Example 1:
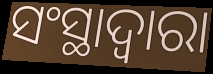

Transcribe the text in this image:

ସଂସ୍ଥାଦ୍ୱାରା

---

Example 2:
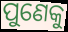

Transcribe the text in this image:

ପୁଣେକୁ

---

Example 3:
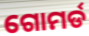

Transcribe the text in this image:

ଗୋମର୍ଡ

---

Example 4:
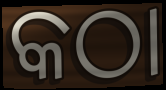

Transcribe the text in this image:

କଠା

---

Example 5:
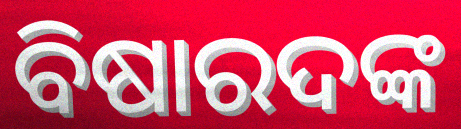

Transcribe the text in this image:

ବିଷାରଦଙ୍କ